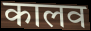
कालव